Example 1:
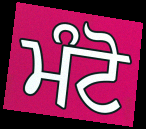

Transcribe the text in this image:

ਮੰਟੋ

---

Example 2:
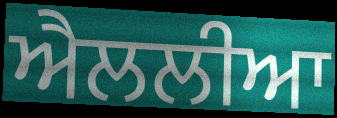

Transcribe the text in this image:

ਐਲਲੀਆ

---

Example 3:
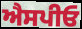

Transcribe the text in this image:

ਐਸਪੀਓ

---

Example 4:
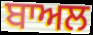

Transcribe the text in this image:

ਬਾਅਲ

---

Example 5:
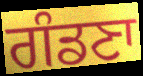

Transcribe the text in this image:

ਗੰਡਣਾ